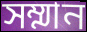
সম্মান